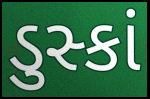
ડુસ્કાં